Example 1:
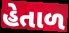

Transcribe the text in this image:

હેતાળ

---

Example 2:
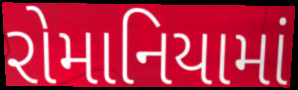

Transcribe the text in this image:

રોમાનિયામાં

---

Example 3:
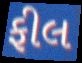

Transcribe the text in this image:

ફીલ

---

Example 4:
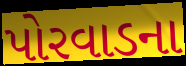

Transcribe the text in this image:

પોરવાડના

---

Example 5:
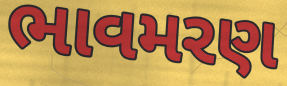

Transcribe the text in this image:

ભાવમરણ